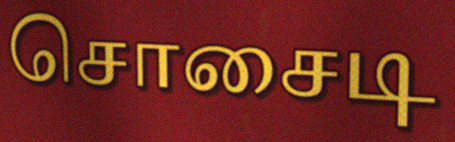
சொசைடி